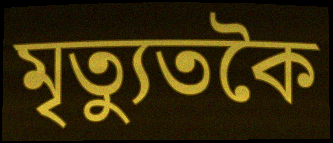
মৃত্যুতকৈ